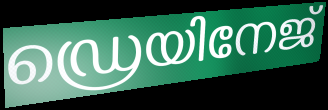
ഡ്രെയിനേജ്